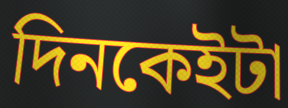
দিনকেইটা